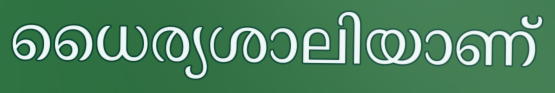
ധൈര്യശാലിയാണ്